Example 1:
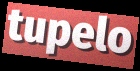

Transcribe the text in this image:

tupelo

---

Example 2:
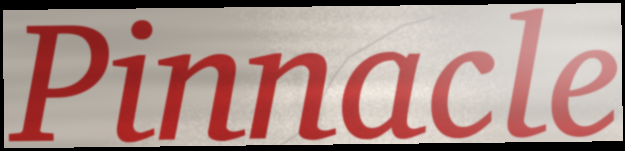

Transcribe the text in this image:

Pinnacle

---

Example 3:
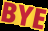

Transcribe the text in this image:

BYE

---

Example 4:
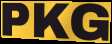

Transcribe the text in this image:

PKG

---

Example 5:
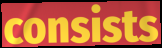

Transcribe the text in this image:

consists